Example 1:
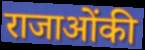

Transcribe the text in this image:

राजाओंकी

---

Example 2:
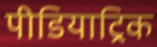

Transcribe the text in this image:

पीडियाट्रिक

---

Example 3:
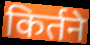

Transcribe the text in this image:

किर्तने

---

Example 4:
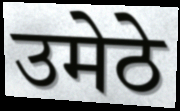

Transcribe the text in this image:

उमेठे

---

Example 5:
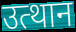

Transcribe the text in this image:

उत्थान